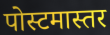
पोस्टमास्तर